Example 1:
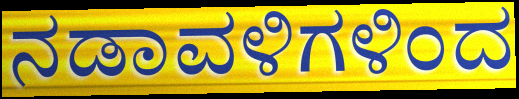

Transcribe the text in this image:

ನಡಾವಳಿಗಳಿಂದ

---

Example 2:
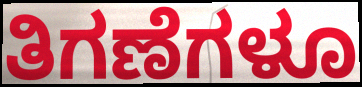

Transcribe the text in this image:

ತಿಗಣೆಗಳೂ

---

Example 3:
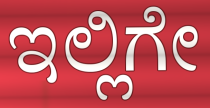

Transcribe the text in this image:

ಇಲ್ಲಿಗೇ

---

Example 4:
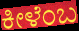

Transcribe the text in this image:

ಕೀಳೆಂಬ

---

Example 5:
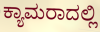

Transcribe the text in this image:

ಕ್ಯಾಮರಾದಲ್ಲಿ